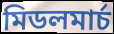
মিডলমাৰ্চ